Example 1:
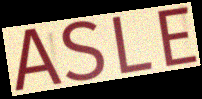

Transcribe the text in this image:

ASLE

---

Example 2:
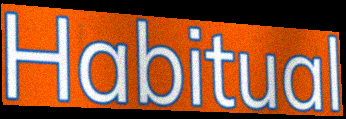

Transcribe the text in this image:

Habitual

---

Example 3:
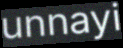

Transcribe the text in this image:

unnayi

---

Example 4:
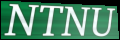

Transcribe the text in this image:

NTNU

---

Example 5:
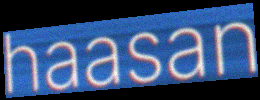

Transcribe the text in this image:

haasan